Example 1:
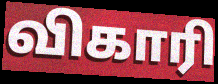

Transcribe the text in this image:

விகாரி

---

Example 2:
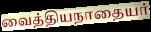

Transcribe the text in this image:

வைத்தியநாதையர்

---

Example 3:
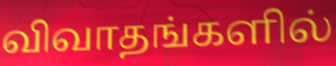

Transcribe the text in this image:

விவாதங்களில்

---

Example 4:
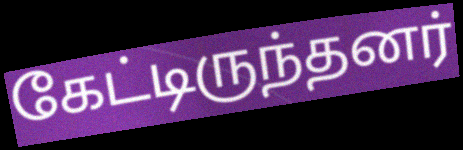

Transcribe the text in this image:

கேட்டிருந்தனர்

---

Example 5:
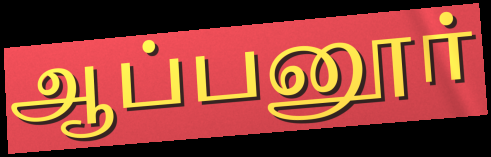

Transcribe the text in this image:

ஆப்பனூர்